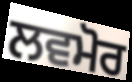
ਲਵਮੋਰ